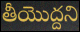
తీయొద్దని